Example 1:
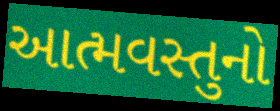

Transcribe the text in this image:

આત્મવસ્તુનો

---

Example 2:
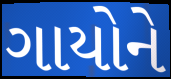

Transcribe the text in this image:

ગાયોને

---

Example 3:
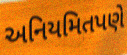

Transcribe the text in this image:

અનિયમિતપણે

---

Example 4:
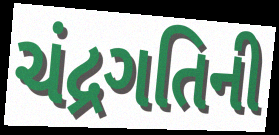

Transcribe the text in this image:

ચંદ્રગતિની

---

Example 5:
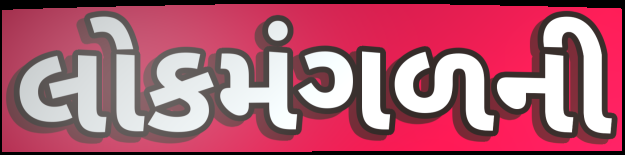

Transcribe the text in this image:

લોકમંગળની